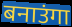
बनाउंगा